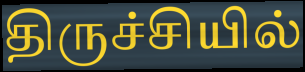
திருச்சியில்